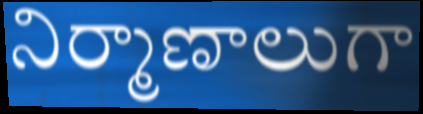
నిర్మాణాలుగా